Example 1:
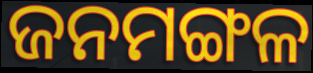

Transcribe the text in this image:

ଜନମଙ୍ଗଳ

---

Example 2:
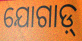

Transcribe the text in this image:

ଯୋଗାଡ଼୍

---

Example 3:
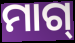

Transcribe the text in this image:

ମାଗ୍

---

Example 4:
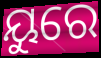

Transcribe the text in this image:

ୟୁରେ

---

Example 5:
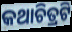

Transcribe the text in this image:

କଥାଚିତ୍ରଟି